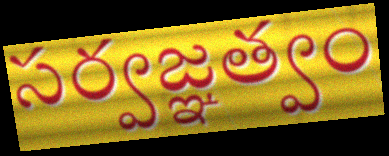
సర్వజ్ఞత్వం